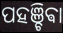
ପହଞ୍ଚିଵା